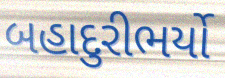
બહાદુરીભર્યો